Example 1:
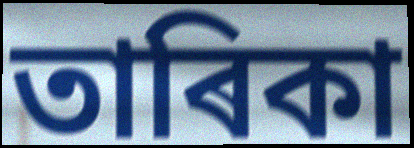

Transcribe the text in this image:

তাৰিকা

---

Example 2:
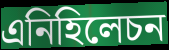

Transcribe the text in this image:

এনিহিলেচন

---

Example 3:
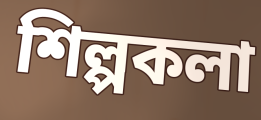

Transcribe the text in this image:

শিল্পকলা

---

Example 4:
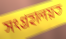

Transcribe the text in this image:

সংগ্ৰহালয়ত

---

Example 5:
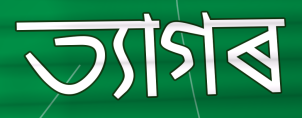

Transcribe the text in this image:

ত্যাগৰ